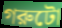
গরুটো